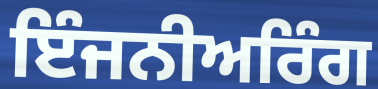
ਇੰਜਨੀਅਰਿੰਗ